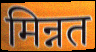
मिन्नत